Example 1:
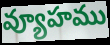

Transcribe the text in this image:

వ్యూహము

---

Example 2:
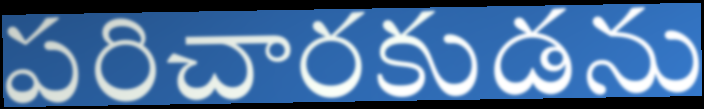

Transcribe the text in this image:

పరిచారకుడను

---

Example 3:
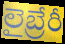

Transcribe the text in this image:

లైబ్రేరీ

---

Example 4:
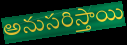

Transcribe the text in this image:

అనుసరిస్తాయి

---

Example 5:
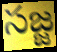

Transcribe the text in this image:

సజ్జ